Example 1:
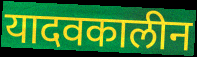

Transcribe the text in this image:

यादवकालीन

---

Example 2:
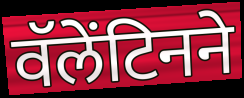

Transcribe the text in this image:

वॅलेंटिनने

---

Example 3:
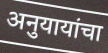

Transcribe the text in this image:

अनुयायांचा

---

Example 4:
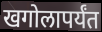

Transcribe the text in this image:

खगोलापर्यंत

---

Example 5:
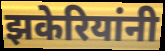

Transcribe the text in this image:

झकेरियांनी